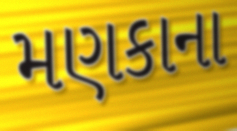
મણકાના